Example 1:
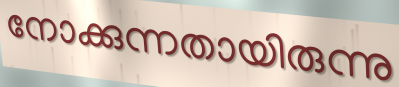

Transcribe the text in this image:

നോക്കുന്നതായിരുന്നു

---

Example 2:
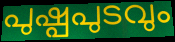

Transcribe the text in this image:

പുഷ്പപുടവും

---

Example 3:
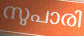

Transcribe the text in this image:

സുപാരി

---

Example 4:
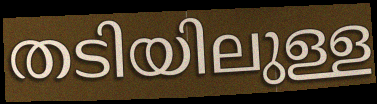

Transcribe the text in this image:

തടിയിലുള്ള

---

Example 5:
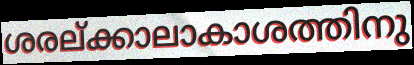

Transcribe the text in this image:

ശരല്ക്കാലാകാശത്തിനു